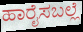
ಹಾರೈಸಬಲ್ಲೆ